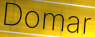
Domar